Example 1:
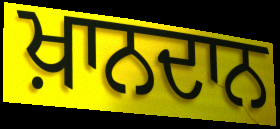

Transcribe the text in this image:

ਖ਼ਾਨਦਾਨ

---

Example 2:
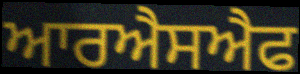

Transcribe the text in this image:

ਆਰਐਸਐਫ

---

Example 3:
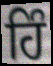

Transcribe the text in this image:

ਹਿੰ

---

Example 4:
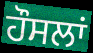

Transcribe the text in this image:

ਹੌਸਲਾਂ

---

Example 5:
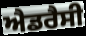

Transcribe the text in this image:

ਐਡਰੈਸੀ